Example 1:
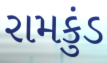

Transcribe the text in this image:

રામકુંડ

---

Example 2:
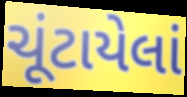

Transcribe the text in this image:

ચૂંટાયેલાં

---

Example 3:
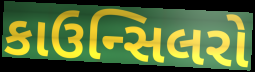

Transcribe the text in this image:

કાઉન્સિલરો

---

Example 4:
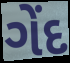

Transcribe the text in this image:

ગેંદ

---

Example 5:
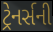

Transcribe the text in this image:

ટ્રેનર્સની